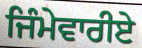
ਜਿੰਮੇਵਾਰੀਏ